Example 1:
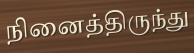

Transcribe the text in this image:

நினைத்திருந்து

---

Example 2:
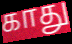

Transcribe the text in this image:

காது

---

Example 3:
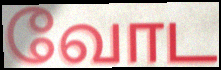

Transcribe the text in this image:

வோட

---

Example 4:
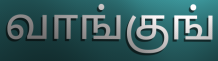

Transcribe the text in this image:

வாங்குங்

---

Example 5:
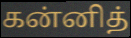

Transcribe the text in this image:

கன்னித்